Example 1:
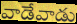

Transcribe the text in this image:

వాడేవాడు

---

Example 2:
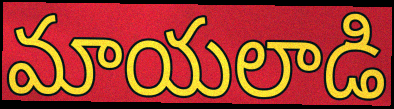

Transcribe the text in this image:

మాయలాడి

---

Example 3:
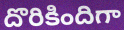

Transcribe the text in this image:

దొరికిందిగా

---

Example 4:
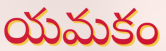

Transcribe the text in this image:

యమకం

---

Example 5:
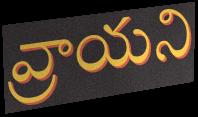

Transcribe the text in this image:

వ్రాయని